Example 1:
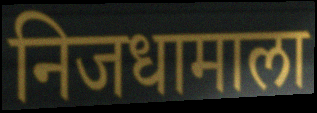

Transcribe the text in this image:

निजधामाला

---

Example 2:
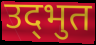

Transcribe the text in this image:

उद्भुत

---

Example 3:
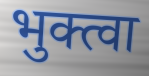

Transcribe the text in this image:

भुक्त्वा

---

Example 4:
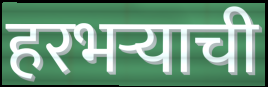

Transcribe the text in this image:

हरभऱ्याची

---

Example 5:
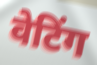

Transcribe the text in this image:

वेटिंग